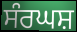
ਸੰਰਘਸ਼